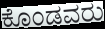
ಕೊಂಡವರು